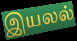
இயலல்